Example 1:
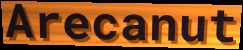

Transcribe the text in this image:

Arecanut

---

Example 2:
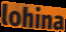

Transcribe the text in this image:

lohina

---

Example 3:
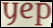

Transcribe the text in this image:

yep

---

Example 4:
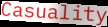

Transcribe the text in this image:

Casuality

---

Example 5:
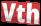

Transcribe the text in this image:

Vth